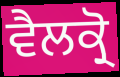
ਵੈਲਕ੍ਰੋ